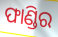
ଫାଣ୍ଡିର